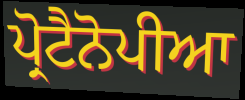
ਪ੍ਰੋਟੈਨੋਪੀਆ